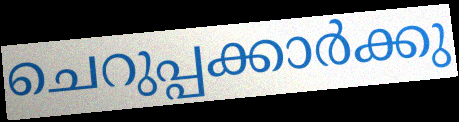
ചെറുപ്പക്കാർക്കു